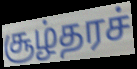
சூழ்தரச்